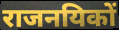
राजनयिकों